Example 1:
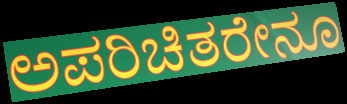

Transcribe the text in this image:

ಅಪರಿಚಿತರೇನೂ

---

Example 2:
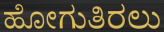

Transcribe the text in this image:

ಹೋಗುತಿರಲು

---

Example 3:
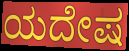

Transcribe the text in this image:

ಯದೇಷ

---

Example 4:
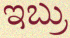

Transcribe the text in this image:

ಇಬ್ರು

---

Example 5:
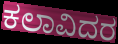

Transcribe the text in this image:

ಕಲಾವಿದರ